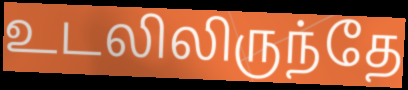
உடலிலிருந்தே